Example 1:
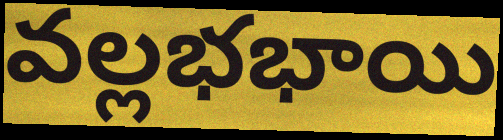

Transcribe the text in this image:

వల్లభభాయి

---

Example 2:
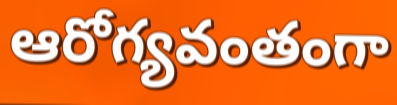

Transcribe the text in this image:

ఆరోగ్యవంతంగా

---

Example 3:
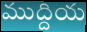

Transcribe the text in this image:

ముద్దియ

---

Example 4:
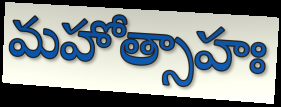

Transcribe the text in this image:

మహోత్సాహః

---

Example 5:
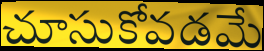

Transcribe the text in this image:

చూసుకోవడమే